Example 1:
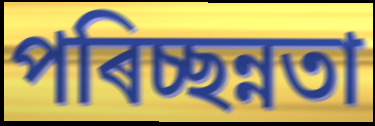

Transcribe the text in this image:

পৰিচ্ছন্নতা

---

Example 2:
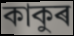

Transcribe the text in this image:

কাকুৰ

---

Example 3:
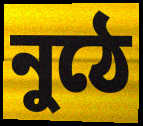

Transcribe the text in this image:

নুঠে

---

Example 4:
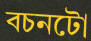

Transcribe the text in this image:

বচনটো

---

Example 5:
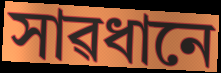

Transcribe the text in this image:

সাৱধানে